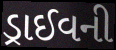
ડ્રાઈવની